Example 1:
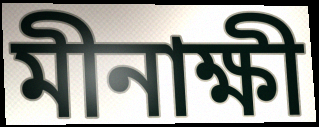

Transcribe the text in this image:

মীনাক্ষী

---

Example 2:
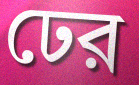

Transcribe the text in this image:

ঢের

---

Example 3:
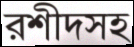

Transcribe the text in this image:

রশীদসহ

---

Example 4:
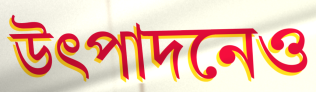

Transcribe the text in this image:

উৎপাদনেও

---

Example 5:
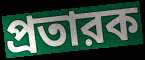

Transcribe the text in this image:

প্রতারক